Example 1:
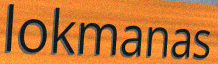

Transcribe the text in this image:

lokmanas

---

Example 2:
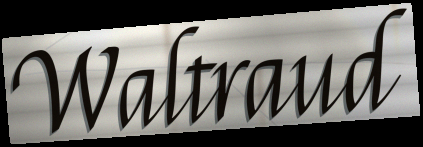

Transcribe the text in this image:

Waltraud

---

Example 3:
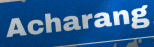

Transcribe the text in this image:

Acharang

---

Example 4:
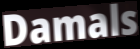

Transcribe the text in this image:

Damals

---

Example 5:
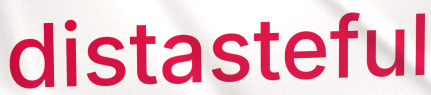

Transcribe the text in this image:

distasteful